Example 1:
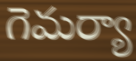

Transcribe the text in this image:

గెమర్యా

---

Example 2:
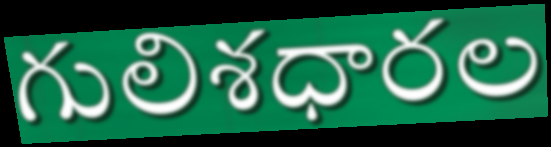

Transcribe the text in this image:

గులిశధారల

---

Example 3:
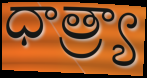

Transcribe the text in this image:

ధాత్ర్యా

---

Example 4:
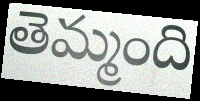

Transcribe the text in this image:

తెమ్మంది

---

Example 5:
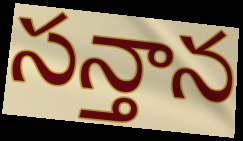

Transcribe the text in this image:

సన్తాన